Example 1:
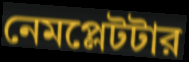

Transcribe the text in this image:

নেমপ্লেটটার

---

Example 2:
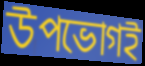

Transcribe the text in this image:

উপভোগই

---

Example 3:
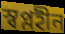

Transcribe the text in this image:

স্বপ্নহীন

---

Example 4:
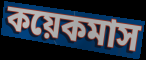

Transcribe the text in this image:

কয়েকমাস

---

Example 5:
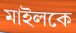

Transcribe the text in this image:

মাইলকে